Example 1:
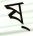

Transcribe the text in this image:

ষ্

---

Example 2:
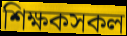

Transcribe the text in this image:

শিক্ষকসকল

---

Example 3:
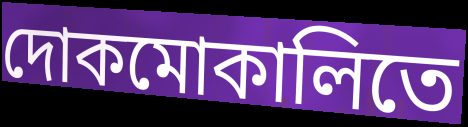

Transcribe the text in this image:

দোকমোকালিতে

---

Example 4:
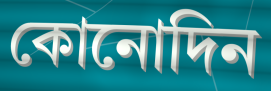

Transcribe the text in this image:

কোনোদিন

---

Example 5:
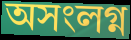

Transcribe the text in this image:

অসংলগ্ন